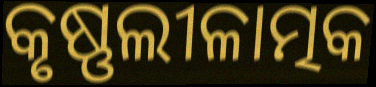
କୃଷ୍ଣଲୀଳାତ୍ମକ